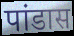
पांडास